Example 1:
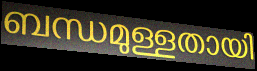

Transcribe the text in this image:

ബന്ധമുള്ളതായി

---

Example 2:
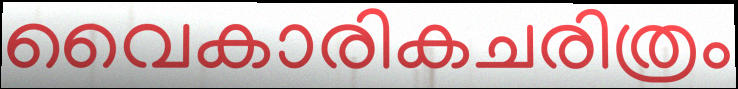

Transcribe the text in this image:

വൈകാരികചരിത്രം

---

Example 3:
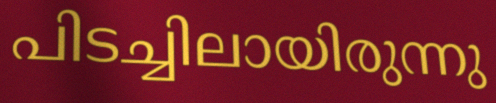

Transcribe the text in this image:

പിടച്ചിലായിരുന്നു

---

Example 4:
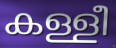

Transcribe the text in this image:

കള്ളീ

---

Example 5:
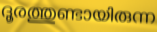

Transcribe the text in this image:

ദൂരത്തുണ്ടായിരുന്ന